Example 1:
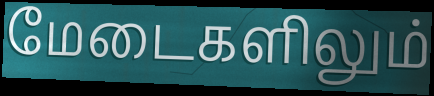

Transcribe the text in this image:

மேடைகளிலும்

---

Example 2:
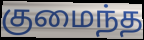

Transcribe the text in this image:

குமைந்த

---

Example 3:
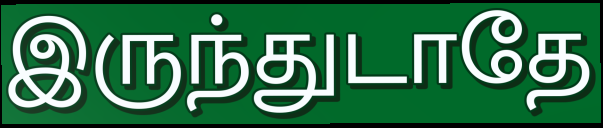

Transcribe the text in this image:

இருந்துடாதே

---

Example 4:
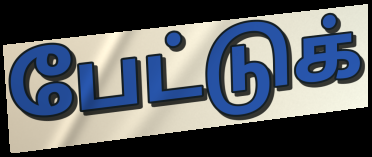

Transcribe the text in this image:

பேட்டுக்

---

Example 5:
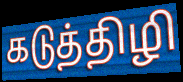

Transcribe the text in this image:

கடுத்திழி